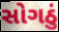
સોગઠું